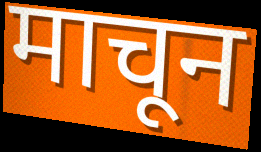
माचून